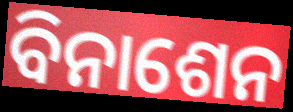
ବିନାଶେନ